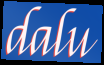
dalu